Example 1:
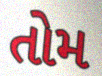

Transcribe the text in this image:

તોમ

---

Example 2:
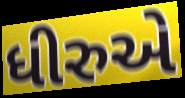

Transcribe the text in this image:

ધીરુએ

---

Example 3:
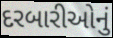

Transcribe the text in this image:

દરબારીઓનું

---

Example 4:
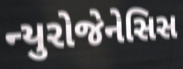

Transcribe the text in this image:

ન્યુરોજેનેસિસ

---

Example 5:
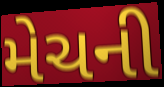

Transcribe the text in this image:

મેચની